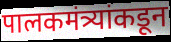
पालकमंत्र्यांकडून